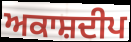
ਅਕਾਸ਼ਦੀਪ